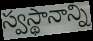
స్వస్థానాన్ని